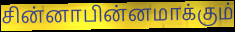
சின்னாபின்னமாக்கும்